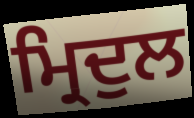
ਮ੍ਰਿਦੁਲ